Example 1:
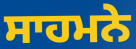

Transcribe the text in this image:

ਸਾਹਮਨੇ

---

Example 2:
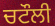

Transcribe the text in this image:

ਚਟੌਲੀ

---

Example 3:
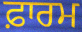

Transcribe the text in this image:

ਫ਼ਾਰਮ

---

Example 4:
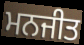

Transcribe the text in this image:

ਮਨਜੀਤ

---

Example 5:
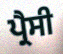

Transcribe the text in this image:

ਪ੍ਰੈਸੀ